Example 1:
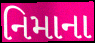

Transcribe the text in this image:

નિમાના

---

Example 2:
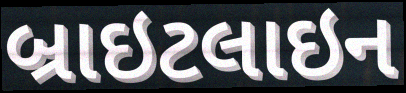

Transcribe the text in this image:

બ્રાઇટલાઇન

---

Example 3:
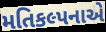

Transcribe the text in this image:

મતિકલ્પનાએ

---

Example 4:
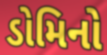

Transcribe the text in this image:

ડોમિનો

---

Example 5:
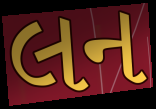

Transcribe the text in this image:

લન